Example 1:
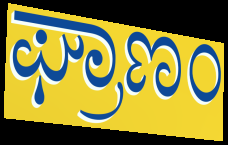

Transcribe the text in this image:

ಘ್ರಾಣಂ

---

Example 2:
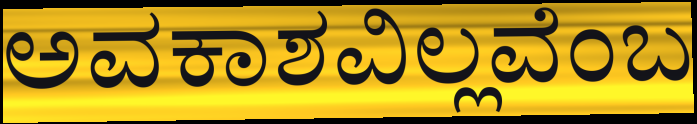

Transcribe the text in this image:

ಅವಕಾಶವಿಲ್ಲವೆಂಬ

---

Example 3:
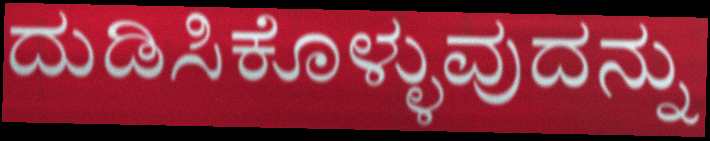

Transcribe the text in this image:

ದುಡಿಸಿಕೊಳ್ಳುವುದನ್ನು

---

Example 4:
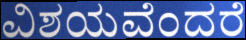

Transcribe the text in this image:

ವಿಶಯವೆಂದರೆ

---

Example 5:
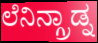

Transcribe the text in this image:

ಲೆನಿನ್ಗ್ರಾಡ್ನ